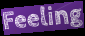
Feeling